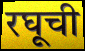
रघूची